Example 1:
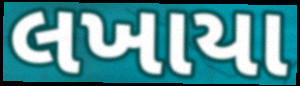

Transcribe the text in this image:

લખાયા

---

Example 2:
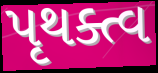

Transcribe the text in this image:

પૃથક્ત્વ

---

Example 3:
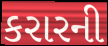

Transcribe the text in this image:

કરારની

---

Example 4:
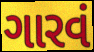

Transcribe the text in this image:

ગારવં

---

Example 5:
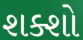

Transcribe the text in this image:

શક્શો